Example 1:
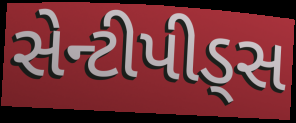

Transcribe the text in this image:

સેન્ટીપીડ્સ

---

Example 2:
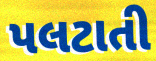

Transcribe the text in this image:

પલટાતી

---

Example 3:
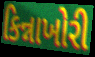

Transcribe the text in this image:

કિન્નાખોરી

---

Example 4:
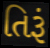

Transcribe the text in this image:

તિરૂં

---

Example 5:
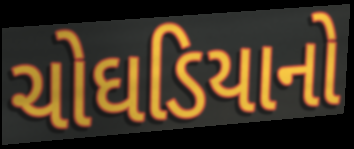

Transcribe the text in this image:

ચોઘડિયાનો